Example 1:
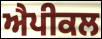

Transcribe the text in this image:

ਐਪੀਕਲ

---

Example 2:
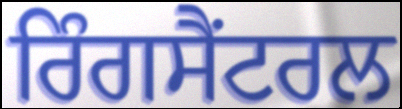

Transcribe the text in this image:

ਰਿੰਗਸੈਂਟਰਲ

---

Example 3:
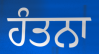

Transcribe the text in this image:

ਹੰਤਨਾ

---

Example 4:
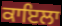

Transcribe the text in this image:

ਕਾਇਲਾ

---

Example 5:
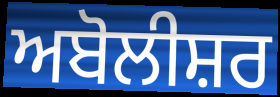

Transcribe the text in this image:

ਅਬੋਲੀਸ਼ਰ